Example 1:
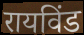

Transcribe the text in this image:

रायविंड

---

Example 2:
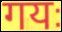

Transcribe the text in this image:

गयः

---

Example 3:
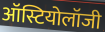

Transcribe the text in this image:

ऑस्टियोलॉजी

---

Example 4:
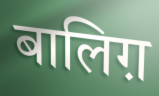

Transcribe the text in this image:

बालिग़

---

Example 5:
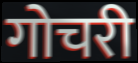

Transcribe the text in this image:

गोचरी